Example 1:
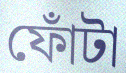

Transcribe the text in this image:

ফোঁটা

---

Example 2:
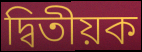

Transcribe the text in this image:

দ্বিতীয়ক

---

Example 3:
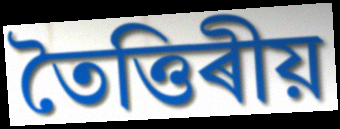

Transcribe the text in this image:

তৈত্তিৰীয়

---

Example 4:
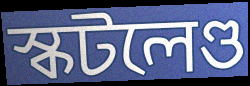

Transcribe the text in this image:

স্কটলেণ্ড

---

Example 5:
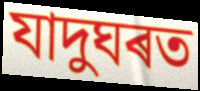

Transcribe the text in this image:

যাদুঘৰত